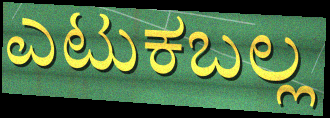
ಎಟುಕಬಲ್ಲ